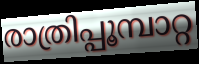
രാത്രിപ്പൂമ്പാറ്റ